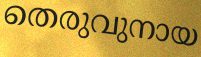
തെരുവുനായ